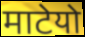
माटेयो